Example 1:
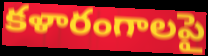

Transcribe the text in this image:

కళారంగాలపై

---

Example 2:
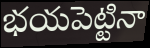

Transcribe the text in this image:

భయపెట్టినా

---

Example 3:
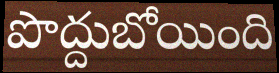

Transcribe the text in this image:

పొద్దుబోయింది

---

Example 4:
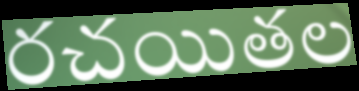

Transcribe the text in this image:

రచయితల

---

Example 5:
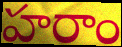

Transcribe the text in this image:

హరాం